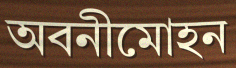
অবনীমোহন